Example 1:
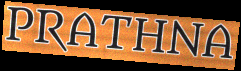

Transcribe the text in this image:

PRATHNA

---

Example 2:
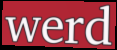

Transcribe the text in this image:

werd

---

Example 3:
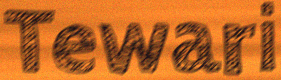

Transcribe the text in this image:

Tewari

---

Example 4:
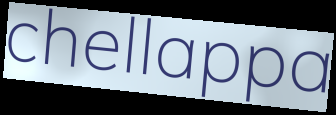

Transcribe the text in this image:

chellappa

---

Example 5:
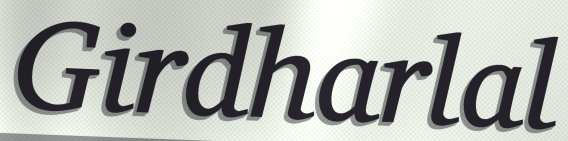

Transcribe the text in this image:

Girdharlal